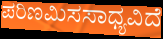
ಪರಿಣಮಿಸಸಾಧ್ಯವಿದೆ